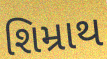
શિમ્રાથ